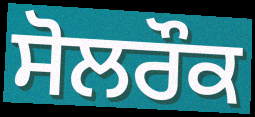
ਸੋਲਰੌਕ